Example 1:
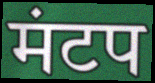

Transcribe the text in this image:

मंटप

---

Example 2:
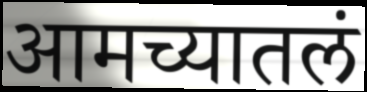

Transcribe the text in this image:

आमच्यातलं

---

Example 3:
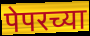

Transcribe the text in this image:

पेपरच्या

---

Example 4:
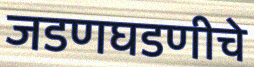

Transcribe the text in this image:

जडणघडणीचे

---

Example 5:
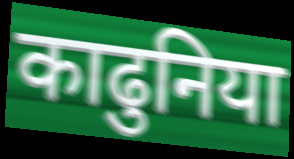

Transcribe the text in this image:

काढुनिया